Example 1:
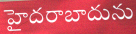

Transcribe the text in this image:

హైదరాబాదును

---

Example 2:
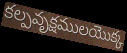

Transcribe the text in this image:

కల్పవృక్షములయొక్క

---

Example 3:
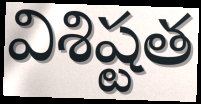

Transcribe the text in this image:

విశిష్టత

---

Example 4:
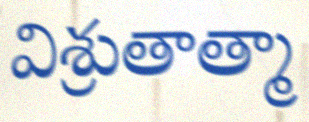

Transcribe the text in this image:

విశ్రుతాత్మా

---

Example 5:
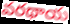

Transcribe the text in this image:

వరథాయ